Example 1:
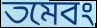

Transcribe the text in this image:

তমেবং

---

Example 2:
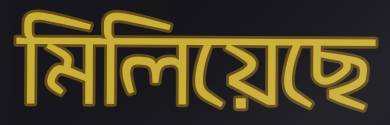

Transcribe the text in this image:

মিলিয়েছে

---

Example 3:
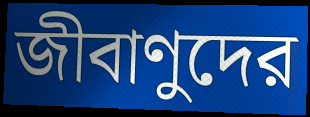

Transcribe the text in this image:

জীবাণুদের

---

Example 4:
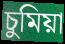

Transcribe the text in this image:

চুমিয়া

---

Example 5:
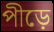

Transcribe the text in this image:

পীড়ে